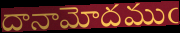
దానామోదముఁ